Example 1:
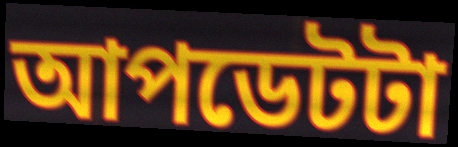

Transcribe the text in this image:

আপডেটটা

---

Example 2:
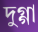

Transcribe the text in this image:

দুগ্গা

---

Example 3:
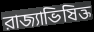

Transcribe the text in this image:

রাজ্যাভিষিক্ত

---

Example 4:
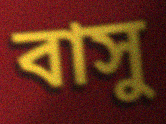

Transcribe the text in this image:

বাসু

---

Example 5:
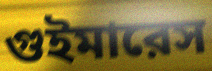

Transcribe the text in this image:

গুইমারেস